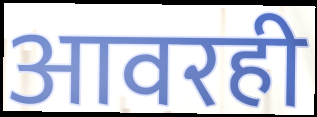
आवरही